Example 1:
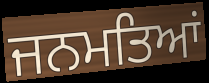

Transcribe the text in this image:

ਜਨਮਤਿਆਂ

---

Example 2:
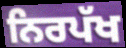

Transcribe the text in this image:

ਨਿਰਪੱਖ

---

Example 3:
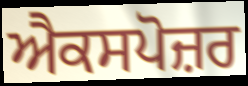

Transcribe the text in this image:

ਐਕਸਪੋਜ਼ਰ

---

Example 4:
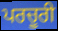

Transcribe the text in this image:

ਪਰਚੂਰੀ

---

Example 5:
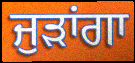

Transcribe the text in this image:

ਜੁੜਾਂਗਾ